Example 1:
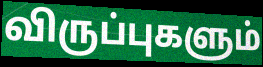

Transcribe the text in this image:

விருப்புகளும்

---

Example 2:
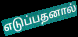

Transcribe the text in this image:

எடுப்பதனால்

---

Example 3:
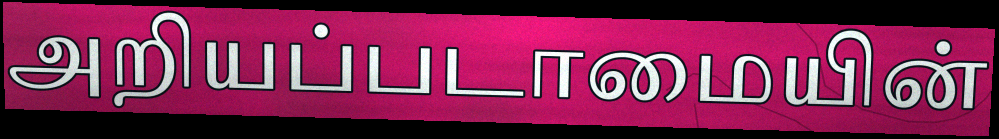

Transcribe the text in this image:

அறியப்படாமையின்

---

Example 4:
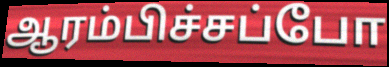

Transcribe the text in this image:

ஆரம்பிச்சப்போ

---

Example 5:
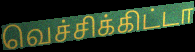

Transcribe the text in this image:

வெச்சிக்கிட்டா